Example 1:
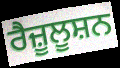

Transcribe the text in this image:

ਰੈਜ਼ੂਲੂਸ਼ਨ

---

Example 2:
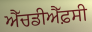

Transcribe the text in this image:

ਐੱਚਡੀਐੱਫ਼ਸੀ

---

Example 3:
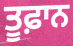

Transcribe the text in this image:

ਤੂਫ਼ਾਨ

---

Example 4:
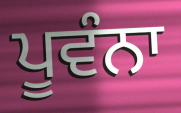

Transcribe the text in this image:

ਪੂਵੰਨਾ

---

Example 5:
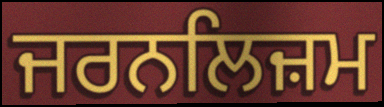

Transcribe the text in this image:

ਜਰਨਲਿਜ਼ਮ